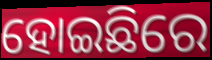
ହୋଇଛିରେ